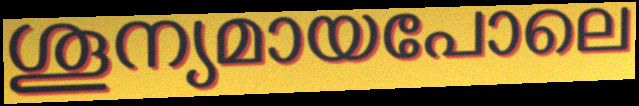
ശൂന്യമായപോലെ